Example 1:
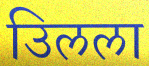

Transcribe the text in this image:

उिलला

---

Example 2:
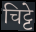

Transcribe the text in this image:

चिट्टे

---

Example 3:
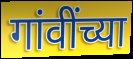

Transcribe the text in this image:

गांवींच्या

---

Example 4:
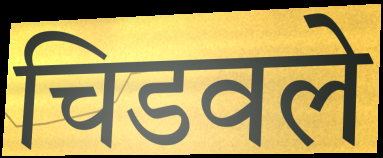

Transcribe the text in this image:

चिडवले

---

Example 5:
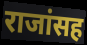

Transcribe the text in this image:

राजांसह